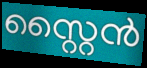
സ്റ്റൈൻ